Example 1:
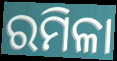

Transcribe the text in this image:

ରମିଳା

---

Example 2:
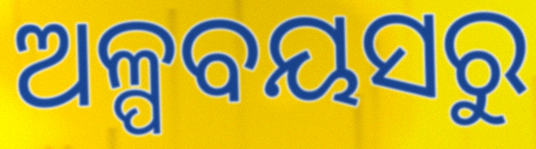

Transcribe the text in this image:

ଅଳ୍ପବୟସରୁ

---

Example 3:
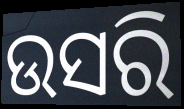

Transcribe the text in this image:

ଉସରି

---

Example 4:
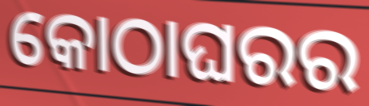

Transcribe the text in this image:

କୋଠାଘରର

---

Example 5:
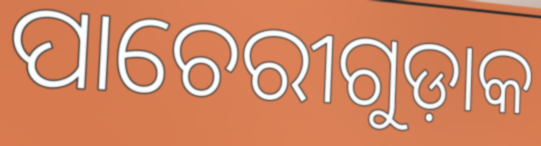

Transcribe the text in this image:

ପାଚେରୀଗୁଡ଼ାକ